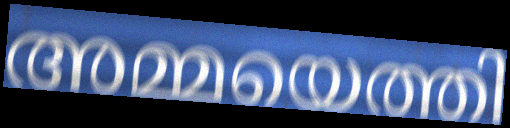
അമ്മയെത്തി